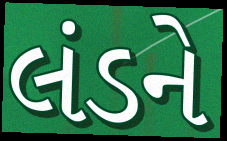
લંડને